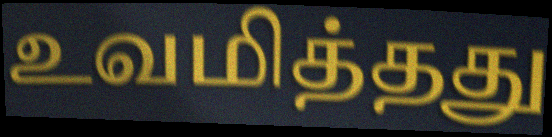
உவமித்தது